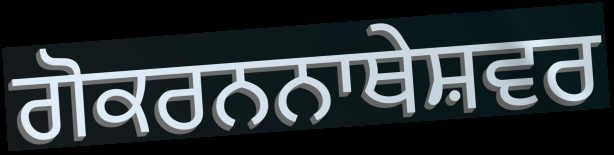
ਗੋਕਰਨਨਾਥੇਸ਼ਵਰ